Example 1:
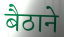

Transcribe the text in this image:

बैठाने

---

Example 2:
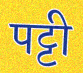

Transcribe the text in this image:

पट्टी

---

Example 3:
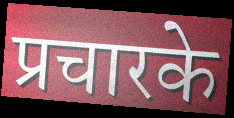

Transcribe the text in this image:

प्रचारके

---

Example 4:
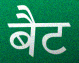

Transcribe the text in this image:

बैट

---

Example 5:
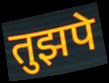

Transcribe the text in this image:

तुझपे